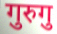
गुरुगु